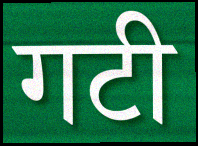
गटी